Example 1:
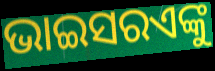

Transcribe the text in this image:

ଭାଇସରଏଙ୍କୁ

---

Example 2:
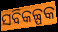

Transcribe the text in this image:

ସବିକଳ୍ପକ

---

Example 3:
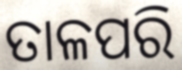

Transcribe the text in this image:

ତାଳପରି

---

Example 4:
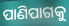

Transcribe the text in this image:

ପାଣିପାଗକୁ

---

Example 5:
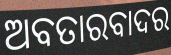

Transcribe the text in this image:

ଅବତାରବାଦର